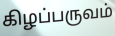
கிழப்பருவம்